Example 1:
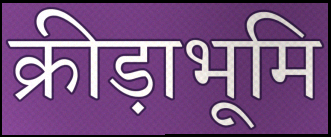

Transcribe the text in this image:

क्रीड़ाभूमि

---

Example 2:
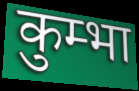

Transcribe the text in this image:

कुम्भा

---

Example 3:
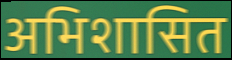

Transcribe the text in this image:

अभिशासित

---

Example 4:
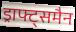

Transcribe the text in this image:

ड्राफ्ट्समैन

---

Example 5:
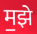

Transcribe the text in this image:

म॒झे